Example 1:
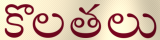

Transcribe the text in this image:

కొలతలు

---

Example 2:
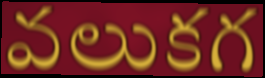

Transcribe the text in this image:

వలుకగ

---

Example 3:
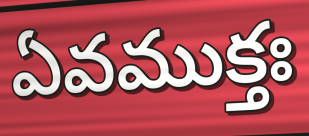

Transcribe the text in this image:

ఏవముక్తః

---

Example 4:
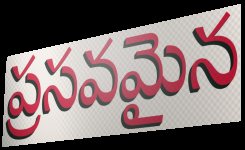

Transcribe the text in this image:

ప్రసవమైన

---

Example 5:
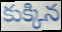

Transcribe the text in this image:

కుక్కిన